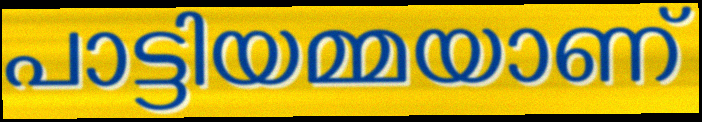
പാട്ടിയമ്മയാണ്